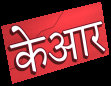
केआर